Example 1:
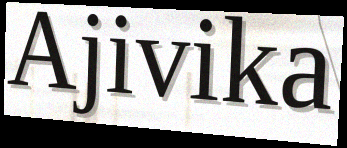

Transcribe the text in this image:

Ajivika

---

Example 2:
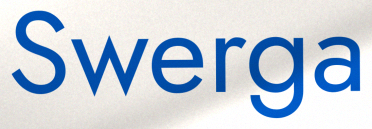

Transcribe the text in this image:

Swerga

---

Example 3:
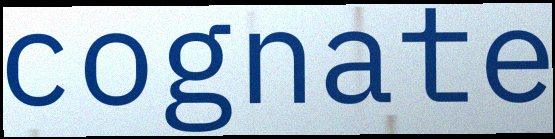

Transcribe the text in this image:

cognate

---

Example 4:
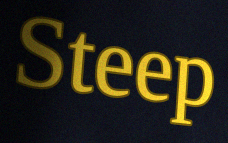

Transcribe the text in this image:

Steep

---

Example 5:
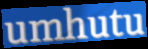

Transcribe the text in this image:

umhutu